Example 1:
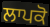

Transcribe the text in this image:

ਲਾਪਕੋ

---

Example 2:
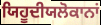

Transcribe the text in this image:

ਯਿਹੂਦੀਯਲੋਕਾਨਾਂ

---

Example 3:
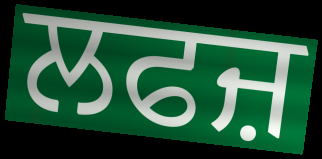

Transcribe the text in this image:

ਲਫਜ਼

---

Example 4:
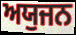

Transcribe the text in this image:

ਅਯੁਜਨ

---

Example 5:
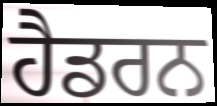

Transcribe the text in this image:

ਹੈਡਰਨ